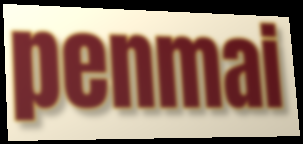
penmai